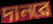
দানৱে